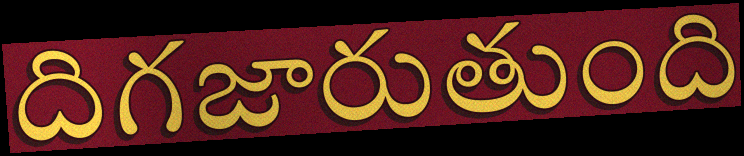
దిగజారుతుంది